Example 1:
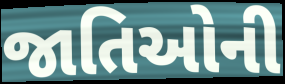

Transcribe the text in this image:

જાતિઓની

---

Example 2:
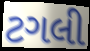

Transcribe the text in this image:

ટગલી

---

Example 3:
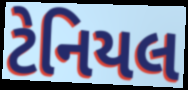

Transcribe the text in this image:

ટેનિયલ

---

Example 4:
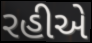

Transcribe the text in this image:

રહીએ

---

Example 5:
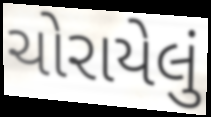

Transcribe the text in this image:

ચોરાયેલું